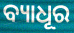
ବ୍ୟାଧୂର